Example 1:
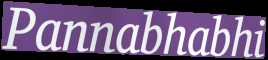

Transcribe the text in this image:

Pannabhabhi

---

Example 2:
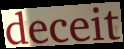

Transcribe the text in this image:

deceit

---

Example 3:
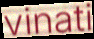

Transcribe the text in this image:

vinati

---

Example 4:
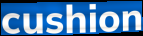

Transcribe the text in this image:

cushion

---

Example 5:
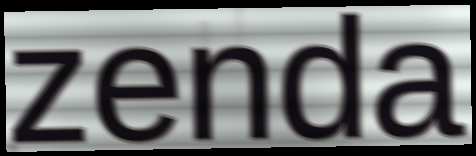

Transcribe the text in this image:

zenda